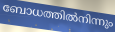
ബോധത്തിൽനിന്നും